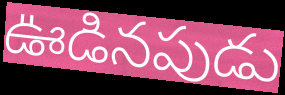
ఊడినపుడు